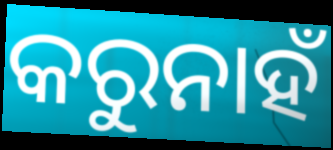
କରୁନାହଁ